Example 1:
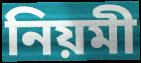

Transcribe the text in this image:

নিয়মী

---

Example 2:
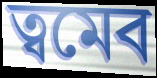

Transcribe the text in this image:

ত্বমেব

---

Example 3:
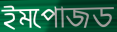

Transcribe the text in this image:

ইমপোজড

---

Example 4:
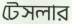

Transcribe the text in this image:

টেসলার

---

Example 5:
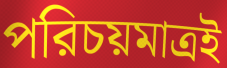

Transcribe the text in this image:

পরিচয়মাত্রই